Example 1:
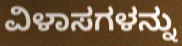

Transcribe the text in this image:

ವಿಳಾಸಗಳನ್ನು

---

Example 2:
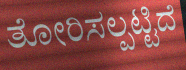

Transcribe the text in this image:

ತೋರಿಸಲ್ಪಟ್ಟಿದೆ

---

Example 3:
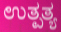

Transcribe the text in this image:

ಉತ್ಪತ್ಯ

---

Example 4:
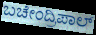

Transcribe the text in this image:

ಬಚೇಂದ್ರಿಪಾಲ್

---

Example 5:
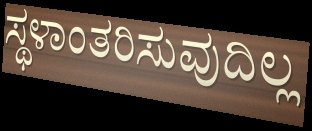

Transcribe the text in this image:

ಸ್ಥಳಾಂತರಿಸುವುದಿಲ್ಲ